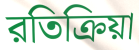
রতিক্রিয়া